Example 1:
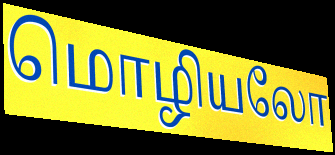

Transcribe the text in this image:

மொழியலோ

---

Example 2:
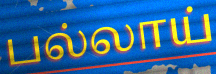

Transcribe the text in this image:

பல்லாய்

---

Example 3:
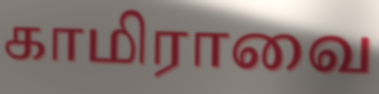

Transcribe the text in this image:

காமிராவை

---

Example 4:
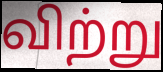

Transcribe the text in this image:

விற்று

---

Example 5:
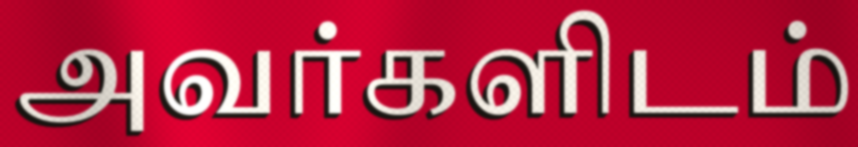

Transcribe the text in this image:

அவர்களிடம்